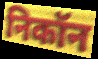
निकॉन